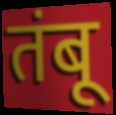
तंबू